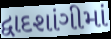
દ્વાદશાંગીમાં